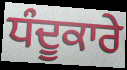
ਧੰਦੂਕਾਰੇ